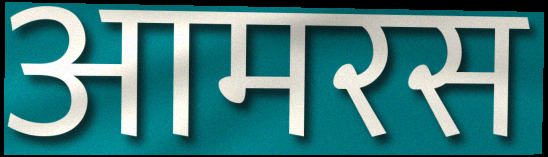
आमरस